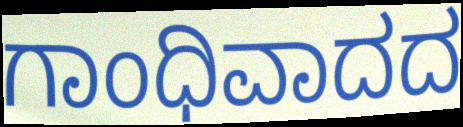
ಗಾಂಧಿವಾದದ